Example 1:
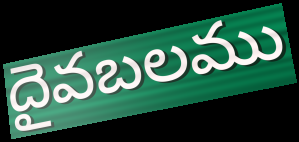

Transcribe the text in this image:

దైవబలము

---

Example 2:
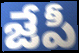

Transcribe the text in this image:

జేపీ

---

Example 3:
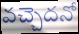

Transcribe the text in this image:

వచ్చెదనో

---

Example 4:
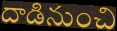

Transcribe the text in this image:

దాడినుంచి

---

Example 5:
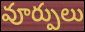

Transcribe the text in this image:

వూర్పులు